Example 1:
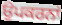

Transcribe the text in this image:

ਉਪਕਰਨਾਂ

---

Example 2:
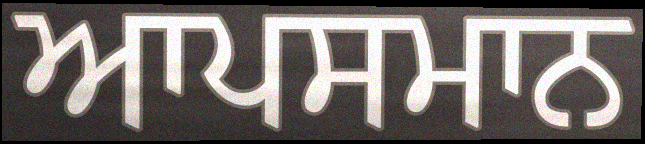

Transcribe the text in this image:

ਆਪਸਮਾਨ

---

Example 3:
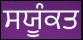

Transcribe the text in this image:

ਸਯੂੰਕਤ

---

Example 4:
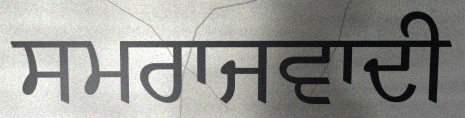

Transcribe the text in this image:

ਸਮਰਾਜਵਾਦੀ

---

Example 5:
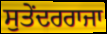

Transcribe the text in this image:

ਸੁਤੇਂਦਰਰਾਜਾ